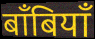
बाँबियाँ